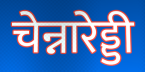
चेन्नारेड्डी